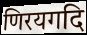
णिरयगदि